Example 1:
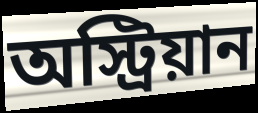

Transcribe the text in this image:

অস্ট্রিয়ান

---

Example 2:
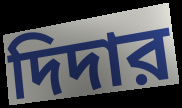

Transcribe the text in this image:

দিদার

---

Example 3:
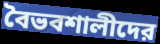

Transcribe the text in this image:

বৈভবশালীদের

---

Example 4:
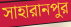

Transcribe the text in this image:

সাহারানপুর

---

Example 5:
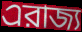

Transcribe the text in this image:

এরাজ্য